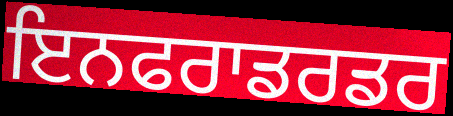
ਇਨਫਰਾਡਰਡਰ